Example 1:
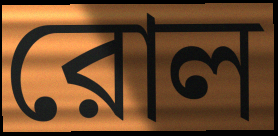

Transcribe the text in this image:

রোল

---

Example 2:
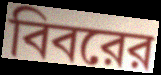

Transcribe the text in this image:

বিবরের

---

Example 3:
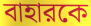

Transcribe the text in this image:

বাহারকে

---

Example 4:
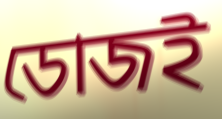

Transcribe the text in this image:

ডোজই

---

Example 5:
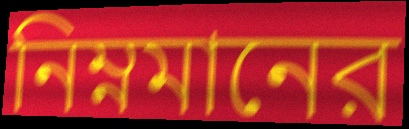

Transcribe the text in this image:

নিম্নমানের